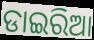
ଡାଇରିଆ